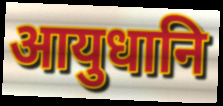
आयुधानि